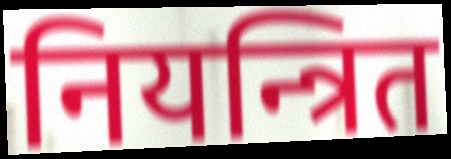
नियन्त्रित